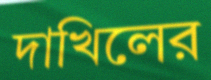
দাখিলের